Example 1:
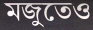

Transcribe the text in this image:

মজুতেও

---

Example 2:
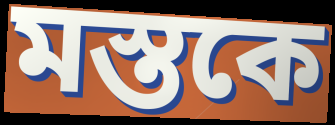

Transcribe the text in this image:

মস্তকে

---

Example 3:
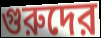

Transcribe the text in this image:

গুরুদের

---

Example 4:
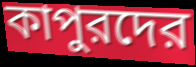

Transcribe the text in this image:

কাপুরদের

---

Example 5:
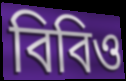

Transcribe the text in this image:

বিবিও